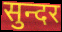
सुन्दर